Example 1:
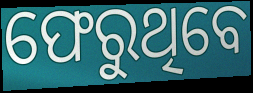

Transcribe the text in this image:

ଫେରୁଥିବେ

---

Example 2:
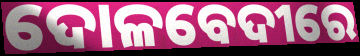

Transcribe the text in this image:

ଦୋଳବେଦୀରେ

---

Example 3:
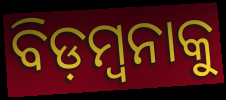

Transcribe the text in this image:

ବିଡ଼ମ୍ୱନାକୁ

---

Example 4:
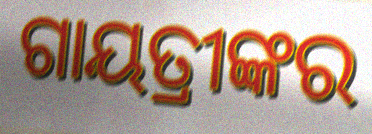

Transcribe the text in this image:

ଗାୟତ୍ରୀଙ୍କର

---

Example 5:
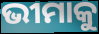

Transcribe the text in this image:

ଭୀମାକୁ